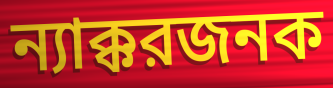
ন্যাক্করজনক